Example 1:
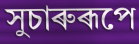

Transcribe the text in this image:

সুচাৰুৰূপে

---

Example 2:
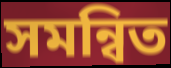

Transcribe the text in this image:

সমন্বিত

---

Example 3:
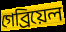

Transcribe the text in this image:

গেব্ৰিয়েল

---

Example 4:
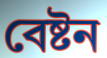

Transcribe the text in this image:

বেষ্টন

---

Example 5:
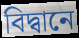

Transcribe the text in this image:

বিদ্বানে